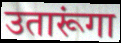
उतारूंगा